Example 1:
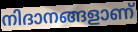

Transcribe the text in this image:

നിദാനങ്ങളാണ്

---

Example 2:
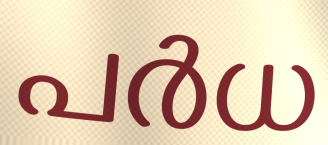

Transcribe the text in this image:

പർധ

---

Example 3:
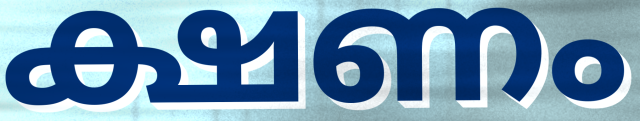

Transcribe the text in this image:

ക്ഷണം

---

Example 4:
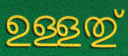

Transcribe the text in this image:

ഉള്ളതു്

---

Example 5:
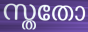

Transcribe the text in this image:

സ്തതോ